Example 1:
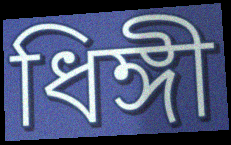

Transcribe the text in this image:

ধিঙ্গী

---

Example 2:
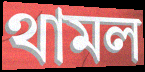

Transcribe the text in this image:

থামল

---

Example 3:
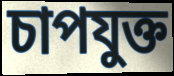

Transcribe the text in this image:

চাপযুক্ত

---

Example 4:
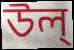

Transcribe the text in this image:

উল্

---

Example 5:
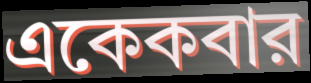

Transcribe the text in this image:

একেকবার